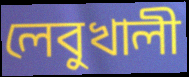
লেবুখালী